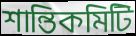
শান্তিকমিটি